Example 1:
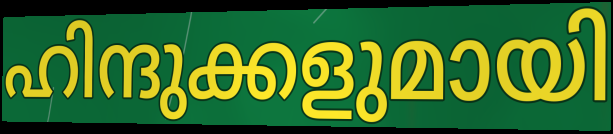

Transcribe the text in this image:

ഹിന്ദുക്കളുമായി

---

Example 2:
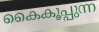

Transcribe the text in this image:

കൈകൂപ്പുന്ന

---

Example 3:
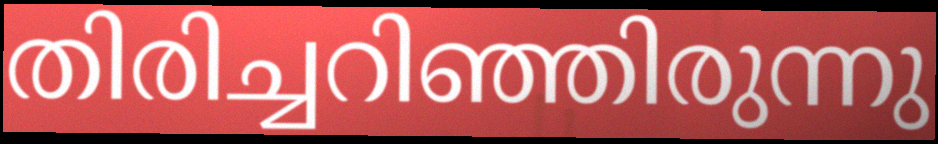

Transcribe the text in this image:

തിരിച്ചറിഞ്ഞിരുന്നു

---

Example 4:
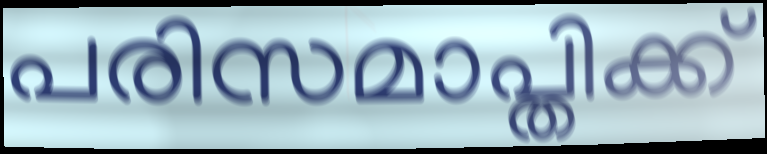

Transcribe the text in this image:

പരിസമാപ്തിക്ക്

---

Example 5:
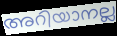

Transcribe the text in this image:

അറിയാനല്ല